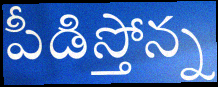
పీడిస్తోన్న